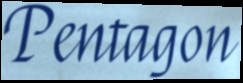
Pentagon